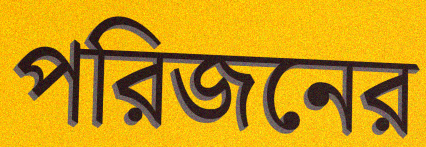
পরিজনের